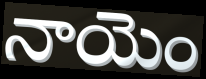
నాయెం